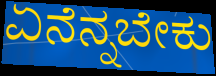
ಏನೆನ್ನಬೇಕು